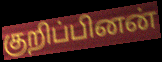
குறிப்பினன்